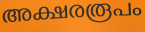
അക്ഷരരൂപം